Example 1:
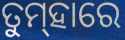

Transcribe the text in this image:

ତୁମ୍‌ହାରେ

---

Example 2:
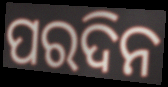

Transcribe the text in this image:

ପରଦିନ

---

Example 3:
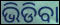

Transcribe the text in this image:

ଭିଡିବା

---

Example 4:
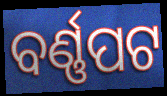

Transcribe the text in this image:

ବର୍ଣ୍ଣପଟ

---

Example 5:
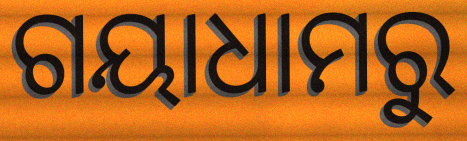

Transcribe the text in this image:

ଗୟାଧାମରୁ